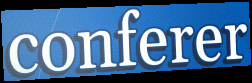
conferer